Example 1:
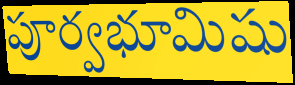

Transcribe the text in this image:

పూర్వభూమిషు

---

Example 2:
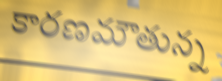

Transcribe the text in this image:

కారణమౌతున్న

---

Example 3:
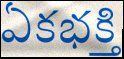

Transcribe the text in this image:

ఏకభక్తి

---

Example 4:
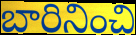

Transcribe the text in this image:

బారినించి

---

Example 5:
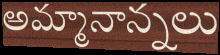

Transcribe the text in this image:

అమ్మానాన్నలు